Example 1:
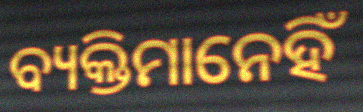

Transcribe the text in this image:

ବ୍ୟକ୍ତିମାନେହିଁ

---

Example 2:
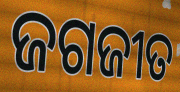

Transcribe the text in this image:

ଜଗଜୀତ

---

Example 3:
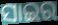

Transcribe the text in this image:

ସାଇର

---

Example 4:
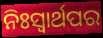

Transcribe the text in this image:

ନିଃସ୍ୱାର୍ଥପର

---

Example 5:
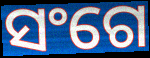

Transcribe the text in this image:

ସଂଗେ